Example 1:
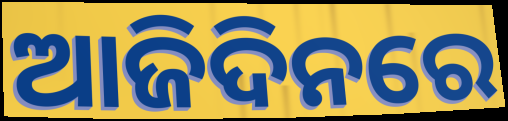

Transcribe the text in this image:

ଆଜିଦିନରେ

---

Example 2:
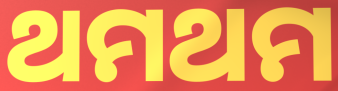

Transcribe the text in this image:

ଥମଥମ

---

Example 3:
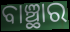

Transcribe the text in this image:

ବାଞ୍ଛାର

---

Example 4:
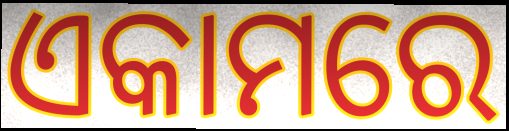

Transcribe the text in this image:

ଏକାମରେ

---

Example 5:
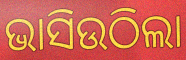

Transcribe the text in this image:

ଭାସିଉଠିଲା